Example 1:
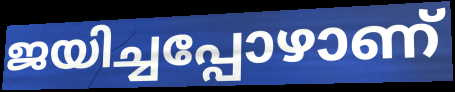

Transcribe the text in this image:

ജയിച്ചപ്പോഴാണ്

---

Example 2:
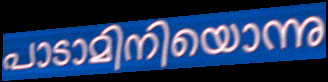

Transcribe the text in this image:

പാടാമിനിയൊന്നു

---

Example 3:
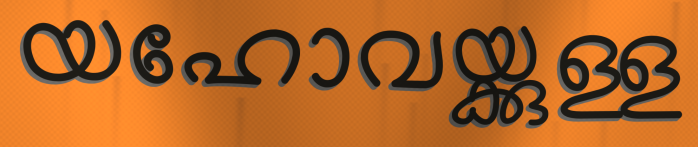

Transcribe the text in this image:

യഹോവയ്ക്കുള്ള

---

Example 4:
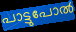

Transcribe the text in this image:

പാട്ടുപോൽ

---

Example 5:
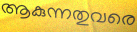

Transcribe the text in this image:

ആകുന്നതുവരെ